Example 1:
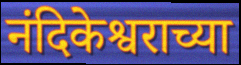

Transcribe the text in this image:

नंदिकेश्वराच्या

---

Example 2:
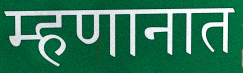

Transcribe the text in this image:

म्हणानात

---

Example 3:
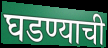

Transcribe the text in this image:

घडण्याची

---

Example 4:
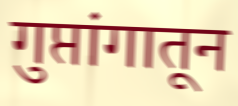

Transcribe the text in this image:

गुप्तांगातून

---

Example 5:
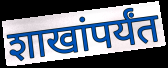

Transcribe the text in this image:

शाखांपर्यंत